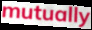
mutually